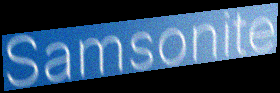
Samsonite